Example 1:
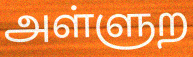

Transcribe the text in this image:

அள்ளுற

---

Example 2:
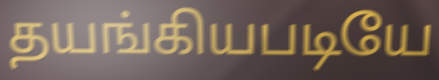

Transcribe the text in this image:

தயங்கியபடியே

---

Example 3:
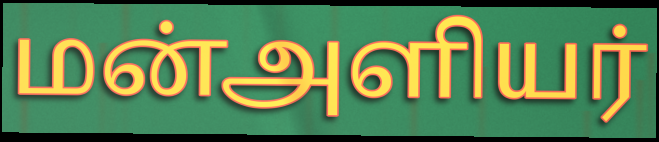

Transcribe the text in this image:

மன்அளியர்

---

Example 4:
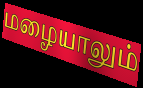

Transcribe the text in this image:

மழையாலும்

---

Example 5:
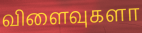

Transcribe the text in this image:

விளைவுகளா